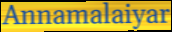
Annamalaiyar